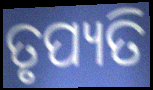
ତୃପ୍ୟତି